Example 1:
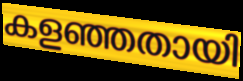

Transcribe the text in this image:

കളഞ്ഞതായി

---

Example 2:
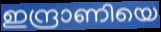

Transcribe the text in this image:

ഇന്ദ്രാണിയെ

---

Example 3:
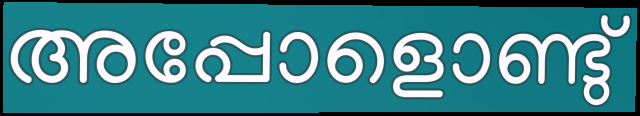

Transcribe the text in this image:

അപ്പോളൊണ്ടു്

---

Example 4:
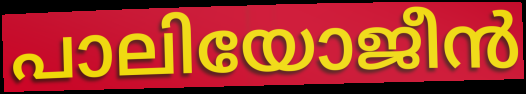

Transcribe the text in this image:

പാലിയോജീൻ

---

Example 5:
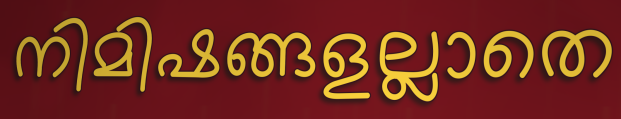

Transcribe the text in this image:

നിമിഷങ്ങളല്ലാതെ